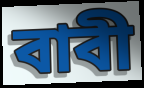
বাবী